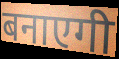
बनाएगी